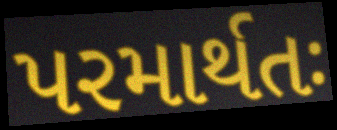
પરમાર્થતઃ